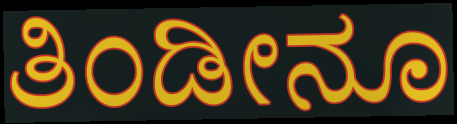
ತಿಂಡೀನೂ